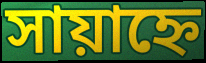
সায়াহ্নে